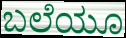
ಬಲೆಯೂ